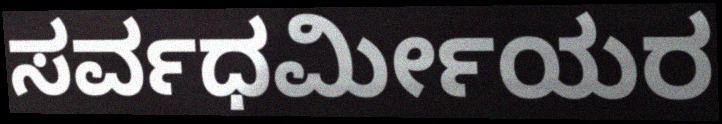
ಸರ್ವಧರ್ಮೀಯರ